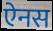
ऐनस